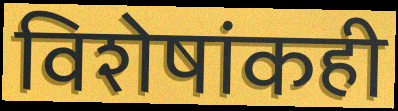
विशेषांकही